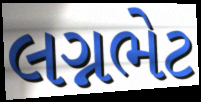
લગ્નભેટ